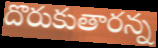
దొరుకుతారన్న